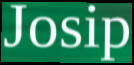
Josip